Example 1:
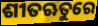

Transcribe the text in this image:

ଶୀତଋତୁରେ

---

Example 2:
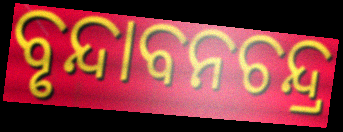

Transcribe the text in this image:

ବୃନ୍ଦାବନଚନ୍ଦ୍ର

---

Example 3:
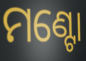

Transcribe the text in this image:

ମଣ୍ଟୋ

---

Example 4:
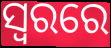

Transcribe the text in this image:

ସ୍ୱରରେ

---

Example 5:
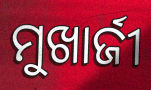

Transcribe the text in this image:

ମୁଖାର୍ଜୀ